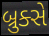
બ્રુક્સે